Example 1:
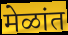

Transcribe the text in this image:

मेळांत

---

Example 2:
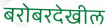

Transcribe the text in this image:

बरोबरदेखील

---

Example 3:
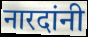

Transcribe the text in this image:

नारदांनी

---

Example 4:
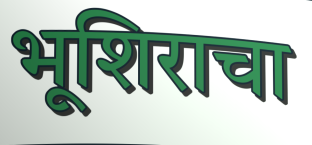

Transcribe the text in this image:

भूशिराचा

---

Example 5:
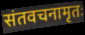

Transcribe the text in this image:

संतवचनामृतः